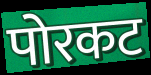
पोरकट